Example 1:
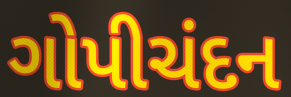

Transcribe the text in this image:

ગોપીચંદન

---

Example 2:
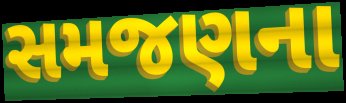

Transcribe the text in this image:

સમજણના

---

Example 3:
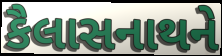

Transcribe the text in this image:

કૈલાસનાથને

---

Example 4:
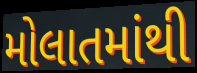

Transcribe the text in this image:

મોલાતમાંથી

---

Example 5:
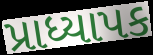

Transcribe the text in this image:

પ્રાધ્યાપક